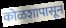
कोळशापासून